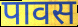
पावस